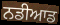
ਨਡੀਆਡ